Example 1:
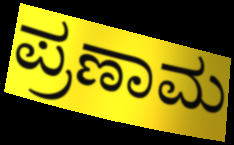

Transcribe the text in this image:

ಪ್ರಣಾಮ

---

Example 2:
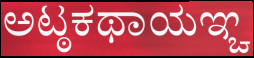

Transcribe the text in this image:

ಅಟ್ಠಕಥಾಯಞ್ಚ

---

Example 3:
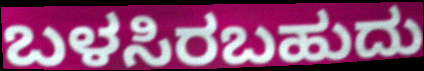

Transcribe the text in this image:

ಬಳಸಿರಬಹುದು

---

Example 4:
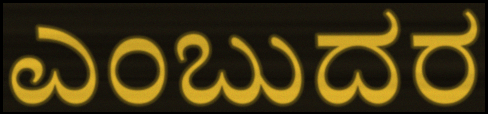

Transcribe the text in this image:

ಎಂಬುದರ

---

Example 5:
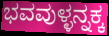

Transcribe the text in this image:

ಭವವುಳ್ಳನ್ನಕ್ಕ